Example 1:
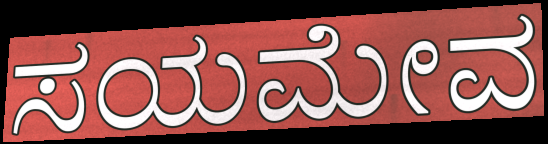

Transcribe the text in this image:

ಸಯಮೇವ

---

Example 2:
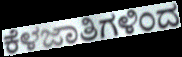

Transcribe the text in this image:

ಕೆಳಜಾತಿಗಳಿಂದ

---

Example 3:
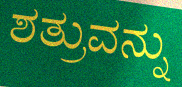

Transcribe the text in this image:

ಶತ್ರುವನ್ನು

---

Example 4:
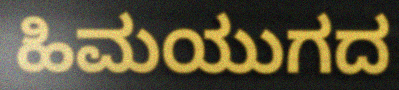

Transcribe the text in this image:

ಹಿಮಯುಗದ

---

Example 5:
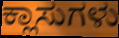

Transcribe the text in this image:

ಕ್ಲಾಸುಗಳು